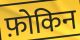
फ़ोकिन